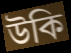
উকি